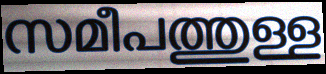
സമീപത്തുള്ള